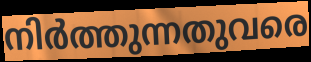
നിർത്തുന്നതുവരെ